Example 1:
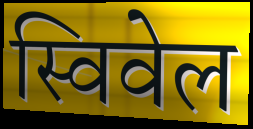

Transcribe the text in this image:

स्विवेल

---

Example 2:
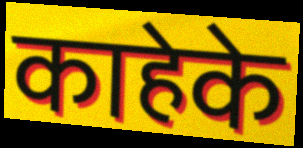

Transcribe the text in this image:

काहेके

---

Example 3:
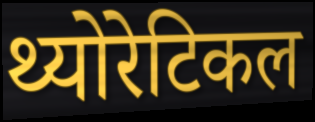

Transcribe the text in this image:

थ्योरेटिकल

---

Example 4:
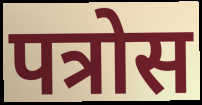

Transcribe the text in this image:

पत्रोस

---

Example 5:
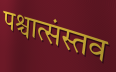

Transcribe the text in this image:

पश्चात्संस्तव